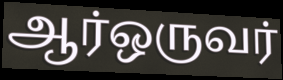
ஆர்ஒருவர்